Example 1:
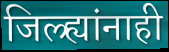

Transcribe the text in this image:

जिल्ह्यांनाही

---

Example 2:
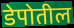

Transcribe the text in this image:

डेपोतील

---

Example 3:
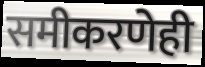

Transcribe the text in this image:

समीकरणेही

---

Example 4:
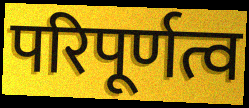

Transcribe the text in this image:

परिपूर्णत्व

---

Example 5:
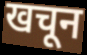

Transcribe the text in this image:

खचून